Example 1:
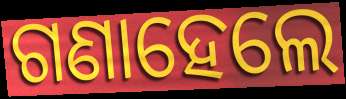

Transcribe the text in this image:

ଗଣାହେଲେ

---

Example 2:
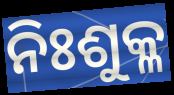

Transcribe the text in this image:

ନିଃଶୁକ୍ଳ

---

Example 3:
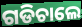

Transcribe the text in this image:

ଗଡିଚାଲେ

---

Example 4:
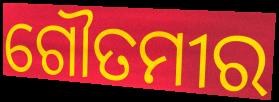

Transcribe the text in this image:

ଗୌତମୀର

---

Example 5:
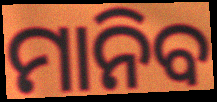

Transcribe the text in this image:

ମାନିବ